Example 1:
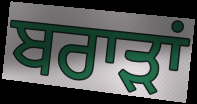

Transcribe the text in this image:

ਬਰਾੜਾਂ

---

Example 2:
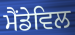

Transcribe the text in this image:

ਮੈਂਡੇਵਿਲ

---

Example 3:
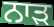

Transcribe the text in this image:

ਨਾੜ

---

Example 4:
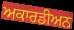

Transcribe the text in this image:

ਅਕਾਰਡੀਅਨ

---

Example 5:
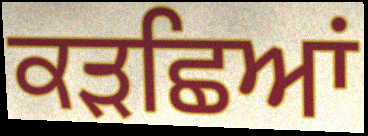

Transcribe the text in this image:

ਕੜਛਿਆਂ